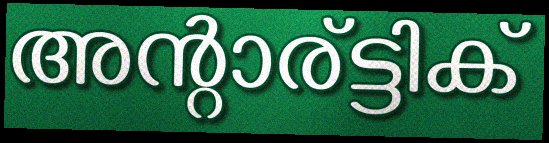
അന്റാര്ട്ടിക്